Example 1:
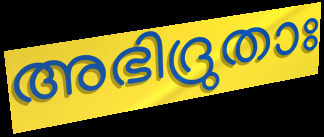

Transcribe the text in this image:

അഭിദ്രുതാഃ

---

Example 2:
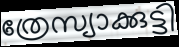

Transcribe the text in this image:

ത്രേസ്യാക്കുട്ടി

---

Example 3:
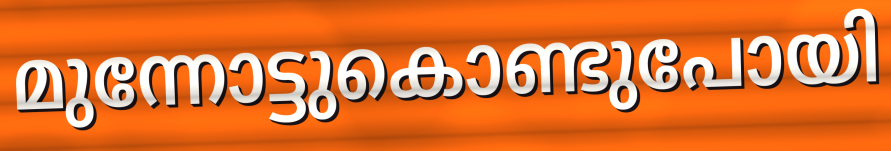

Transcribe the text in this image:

മുന്നോട്ടുകൊണ്ടുപോയി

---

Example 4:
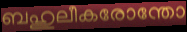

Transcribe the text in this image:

ബഹുലീകരോന്തോ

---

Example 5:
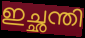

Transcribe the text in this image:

ഇച്ഛന്തി